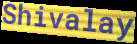
Shivalay